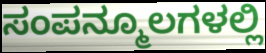
ಸಂಪನ್ಮೂಲಗಳಲ್ಲಿ